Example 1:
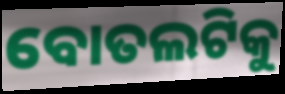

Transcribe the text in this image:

ବୋତଲଟିକୁ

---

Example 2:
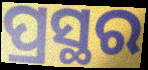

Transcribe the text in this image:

ପ୍ରସ୍ଥର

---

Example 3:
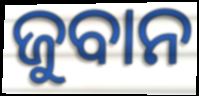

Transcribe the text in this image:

ଜୁବାନ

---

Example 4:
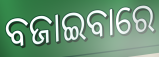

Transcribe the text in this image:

ବଜାଇବାରେ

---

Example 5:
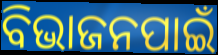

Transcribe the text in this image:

ବିଭାଜନପାଇଁ